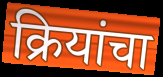
क्रियांचा